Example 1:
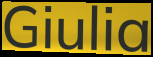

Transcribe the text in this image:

Giulia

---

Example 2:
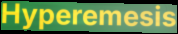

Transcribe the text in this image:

Hyperemesis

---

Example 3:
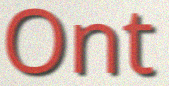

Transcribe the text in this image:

Ont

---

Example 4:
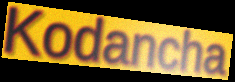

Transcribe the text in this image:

Kodancha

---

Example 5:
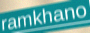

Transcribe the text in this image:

ramkhano